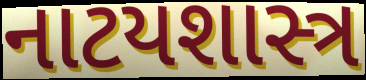
નાટયશાસ્ત્ર